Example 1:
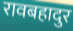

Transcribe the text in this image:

रावबहादुर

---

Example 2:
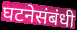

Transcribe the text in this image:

घटनेसंबंधी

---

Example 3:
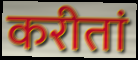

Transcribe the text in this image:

करीतां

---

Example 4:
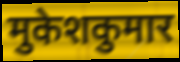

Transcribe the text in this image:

मुकेशकुमार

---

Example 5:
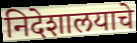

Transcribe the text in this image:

निदेशालयाचे